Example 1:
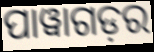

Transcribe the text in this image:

ପାୱାଗଡ଼ର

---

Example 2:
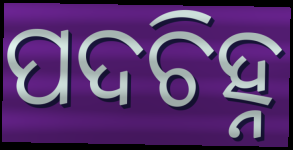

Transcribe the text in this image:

ପଦଚିହ୍ନ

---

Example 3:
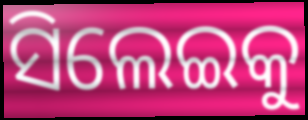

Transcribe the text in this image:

ସିଲେଇକୁ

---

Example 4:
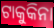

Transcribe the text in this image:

ଟାକୁକିନା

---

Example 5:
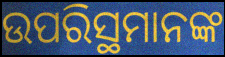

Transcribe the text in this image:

ଉପରିସ୍ଥମାନଙ୍କ